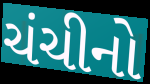
ચંચીનો